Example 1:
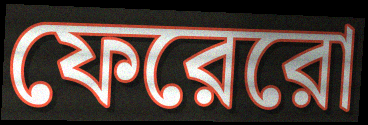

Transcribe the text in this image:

ফেরেরো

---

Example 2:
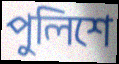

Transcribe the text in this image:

পুলিশে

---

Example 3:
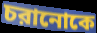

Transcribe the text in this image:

চরানোকে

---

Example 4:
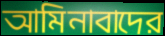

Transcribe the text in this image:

আমিনাবাদের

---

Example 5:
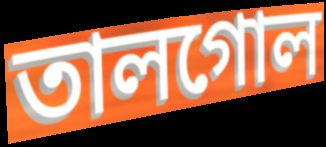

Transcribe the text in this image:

তালগোল